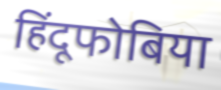
हिंदूफोबिया